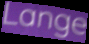
Lange